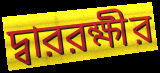
দ্বাররক্ষীর